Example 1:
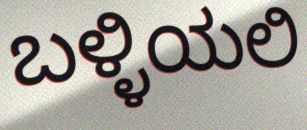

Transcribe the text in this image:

ಬಳ್ಳಿಯಲಿ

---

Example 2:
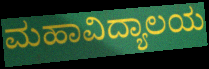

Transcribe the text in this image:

ಮಹಾವಿದ್ಯಾಲಯ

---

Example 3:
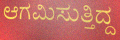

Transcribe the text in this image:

ಆಗಮಿಸುತ್ತಿದ್ದ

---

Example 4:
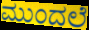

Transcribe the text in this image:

ಮುಂದಲೆ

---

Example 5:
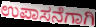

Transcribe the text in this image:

ಉಪಾಸನೆಗಾಗಿ